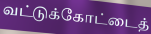
வட்டுக்கோட்டைத்